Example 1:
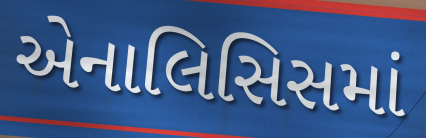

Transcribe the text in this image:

એનાલિસિસમાં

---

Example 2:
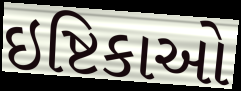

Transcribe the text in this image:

ઇષ્ટિકાઓ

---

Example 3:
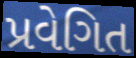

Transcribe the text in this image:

પ્રવેગિત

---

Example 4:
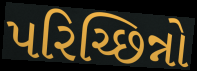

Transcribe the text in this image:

પરિચ્છિન્નો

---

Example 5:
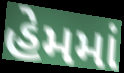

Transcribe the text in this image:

હેમમાં